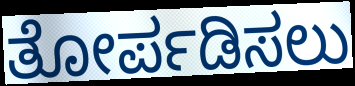
ತೋರ್ಪಡಿಸಲು